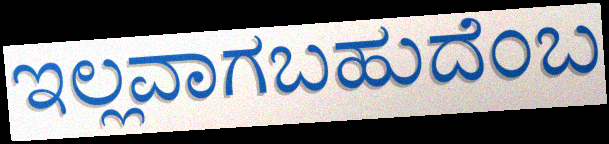
ಇಲ್ಲವಾಗಬಹುದೆಂಬ